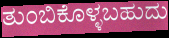
ತುಂಬಿಕೊಳ್ಳಬಹುದು